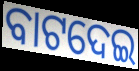
ବାଟଦେଇ